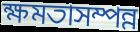
ক্ষমতাসম্পন্ন